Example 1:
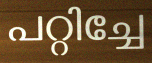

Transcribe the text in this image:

പറ്റിച്ചേ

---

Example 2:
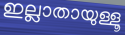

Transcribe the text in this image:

ഇല്ലാതായുള്ളൂ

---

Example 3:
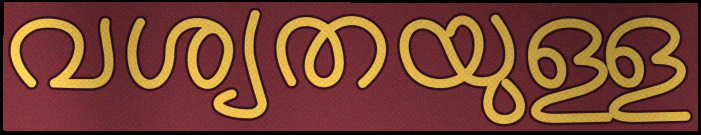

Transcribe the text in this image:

വശ്യതയുള്ള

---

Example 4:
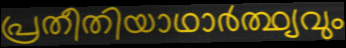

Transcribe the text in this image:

പ്രതീതിയാഥാർത്ഥ്യവും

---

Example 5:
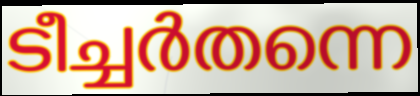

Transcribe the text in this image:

ടീച്ചർതന്നെ